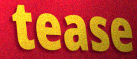
tease